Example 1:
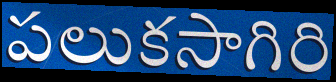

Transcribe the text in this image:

పలుకసాగిరి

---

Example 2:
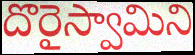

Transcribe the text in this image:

దొరైస్వామిని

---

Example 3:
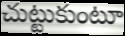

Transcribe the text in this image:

చుట్టుకుంటూ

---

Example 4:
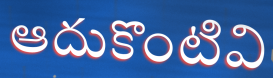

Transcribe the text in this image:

ఆదుకొంటివి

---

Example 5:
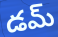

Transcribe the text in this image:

డమ్